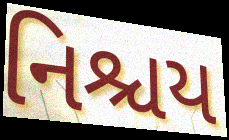
નિશ્ચય